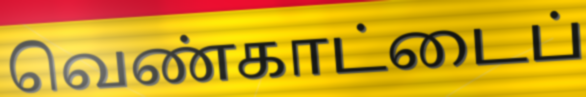
வெண்காட்டைப்